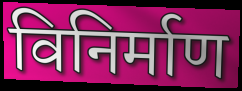
विनिर्माण